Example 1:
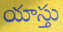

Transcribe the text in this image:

యాస్తు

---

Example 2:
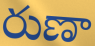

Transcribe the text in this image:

రుణా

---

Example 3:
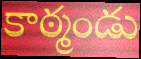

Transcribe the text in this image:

కాఠ్మండు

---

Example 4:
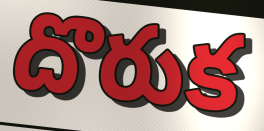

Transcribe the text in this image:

దొరుక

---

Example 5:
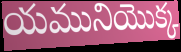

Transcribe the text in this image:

యమునియొక్క